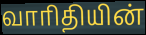
வாரிதியின்